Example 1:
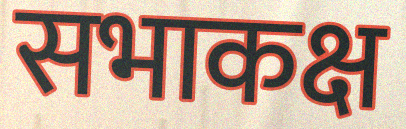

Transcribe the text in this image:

सभाकक्ष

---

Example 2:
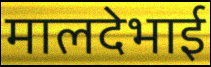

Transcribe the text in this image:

मालदेभाई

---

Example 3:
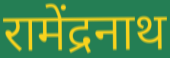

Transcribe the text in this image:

रामेंद्रनाथ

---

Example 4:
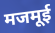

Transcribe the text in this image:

मजमूई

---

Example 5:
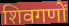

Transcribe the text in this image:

शिवगणों